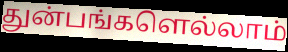
துன்பங்களெல்லாம்